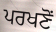
ਪਰਖਣੋਂ